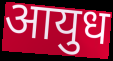
आयुध